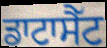
ਡਾਟਾਸੈੱਟ